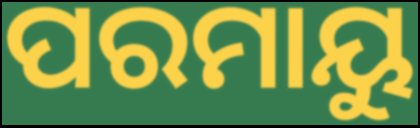
ପରମାୟୁ